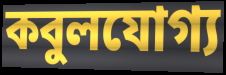
কবুলযোগ্য